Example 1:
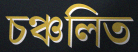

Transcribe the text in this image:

চঞ্চলিত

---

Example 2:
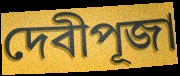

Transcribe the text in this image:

দেবীপূজা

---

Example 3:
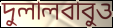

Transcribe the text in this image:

দুলালবাবুও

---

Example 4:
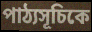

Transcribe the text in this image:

পাঠ্যসূচিকে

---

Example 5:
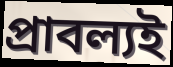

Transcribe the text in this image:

প্রাবল্যই